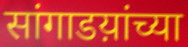
सांगाडय़ांच्या